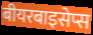
बीयरबाइसेप्स